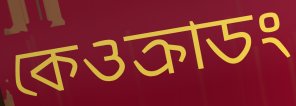
কেওক্রাডং